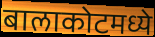
बालाकोटमध्ये